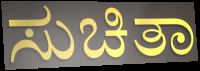
ಸುಚಿತಾ